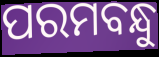
ପରମବନ୍ଧୁ